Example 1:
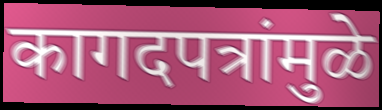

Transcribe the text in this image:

कागदपत्रांमुळे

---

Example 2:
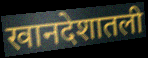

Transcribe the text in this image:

खानदेशातली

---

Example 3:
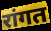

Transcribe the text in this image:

रांगत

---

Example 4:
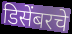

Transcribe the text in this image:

डिसेंबरचे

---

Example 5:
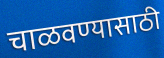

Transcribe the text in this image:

चाळवण्यासाठी